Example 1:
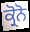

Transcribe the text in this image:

ਕ੍ਰੋਨੋ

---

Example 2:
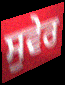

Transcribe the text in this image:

ਸੁਵੇਰ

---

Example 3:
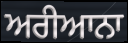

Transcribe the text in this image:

ਅਰੀਆਨਾ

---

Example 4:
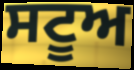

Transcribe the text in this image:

ਸਟੂਅ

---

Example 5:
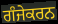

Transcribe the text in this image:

ਗੰਜੇਕਰਨ